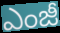
ఎంజీ